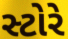
સ્ટોરે